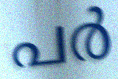
പർ